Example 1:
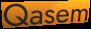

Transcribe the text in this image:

Qasem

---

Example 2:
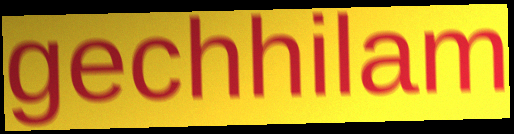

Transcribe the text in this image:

gechhilam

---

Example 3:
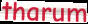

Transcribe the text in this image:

tharum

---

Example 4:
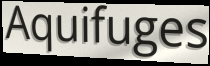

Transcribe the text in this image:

Aquifuges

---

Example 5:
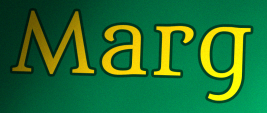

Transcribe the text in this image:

Marg